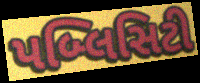
પબ્લિસિટી